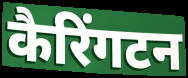
कैरिंगटन